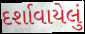
દર્શાવાયેલું